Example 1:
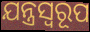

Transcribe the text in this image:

ଯନ୍ତ୍ରସ୍ୱରୂପ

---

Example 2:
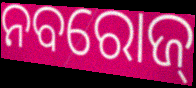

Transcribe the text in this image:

ନବରୋଜ୍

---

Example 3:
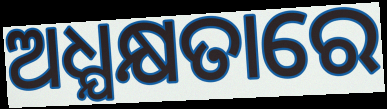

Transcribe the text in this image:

ଅଧ୍ଯକ୍ଷତାରେ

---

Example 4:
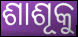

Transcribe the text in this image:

ଶାଶୂକୁ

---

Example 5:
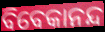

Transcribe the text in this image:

ବିବେକାନନ୍ଦ